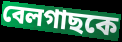
বেলগাছকে